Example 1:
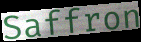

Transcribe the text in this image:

Saffron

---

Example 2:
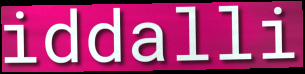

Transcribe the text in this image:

iddalli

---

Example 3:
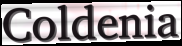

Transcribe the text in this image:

Coldenia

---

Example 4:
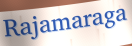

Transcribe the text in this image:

Rajamaraga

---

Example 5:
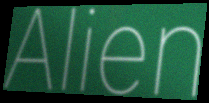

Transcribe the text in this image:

Alien